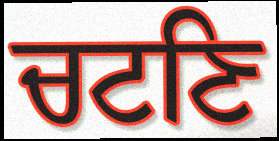
ਚਟਣਿ